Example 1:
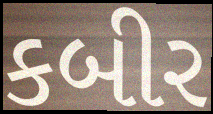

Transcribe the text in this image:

કબીર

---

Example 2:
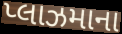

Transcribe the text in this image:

પ્લાઝમાના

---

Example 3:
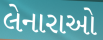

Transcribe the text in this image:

લેનારાઓ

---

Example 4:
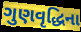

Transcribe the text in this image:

ગુણવૃદ્ધિના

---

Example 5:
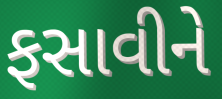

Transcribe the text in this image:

ફસાવીને